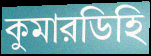
কুমারডিহি